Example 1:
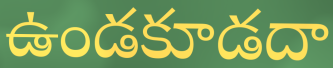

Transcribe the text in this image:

ఉండకూడదా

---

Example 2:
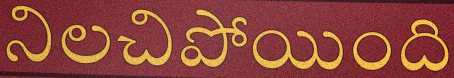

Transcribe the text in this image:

నిలచిపోయింది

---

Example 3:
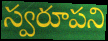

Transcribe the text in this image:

స్వరూపని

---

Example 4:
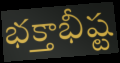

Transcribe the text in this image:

భక్తాభీష్ట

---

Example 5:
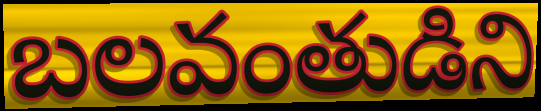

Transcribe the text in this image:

బలవంతుడిని